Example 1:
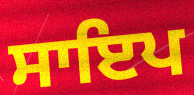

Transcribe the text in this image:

ਸਾਇਪ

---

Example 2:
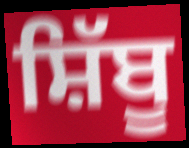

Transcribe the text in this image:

ਸ਼ਿੱਬੂ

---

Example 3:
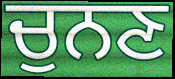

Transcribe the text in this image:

ਚੁਨਣ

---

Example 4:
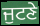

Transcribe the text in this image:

ਜੁਟਣੇ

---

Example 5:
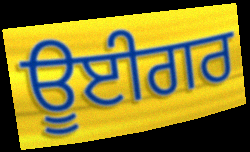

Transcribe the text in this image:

ਊਈਗਰ